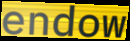
endow